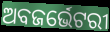
ଅବଜର୍ଭେଟରୀ